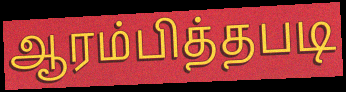
ஆரம்பித்தபடி